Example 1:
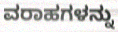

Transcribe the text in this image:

ವರಾಹಗಳನ್ನು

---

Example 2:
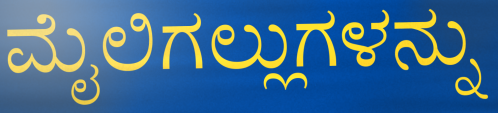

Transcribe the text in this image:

ಮೈಲಿಗಲ್ಲುಗಳನ್ನು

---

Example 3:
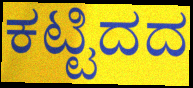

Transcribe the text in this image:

ಕಟ್ಟಿದದ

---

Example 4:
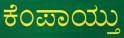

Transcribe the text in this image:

ಕೆಂಪಾಯ್ತು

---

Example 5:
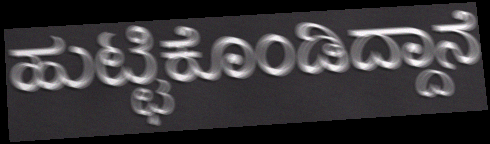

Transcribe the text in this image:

ಹುಟ್ಟಿಕೊಂಡಿದ್ದಾನೆ